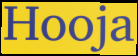
Hooja